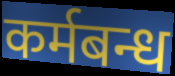
कर्मबन्ध